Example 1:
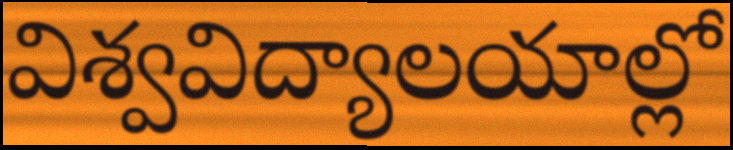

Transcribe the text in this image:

విశ్వవిద్యాలయాల్లో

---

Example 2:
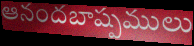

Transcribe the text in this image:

ఆనందబాష్పములు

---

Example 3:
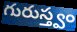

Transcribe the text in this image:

గురుస్త్వం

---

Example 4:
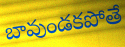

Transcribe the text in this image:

బావుండకపోతే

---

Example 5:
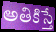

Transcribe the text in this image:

అతికిస్తే